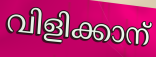
വിളിക്കാന്